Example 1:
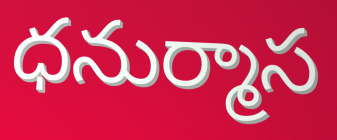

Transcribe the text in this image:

ధనుర్మాస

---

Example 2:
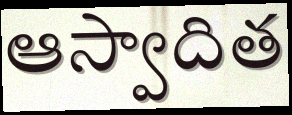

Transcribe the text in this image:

ఆస్వాదిత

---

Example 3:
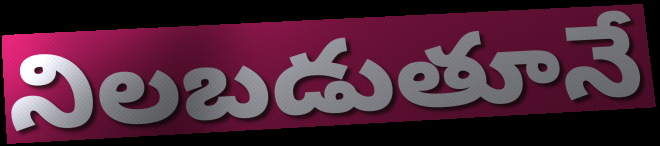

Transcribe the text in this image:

నిలబడుతూనే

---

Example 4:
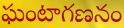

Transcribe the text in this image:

ఘంటాగణనం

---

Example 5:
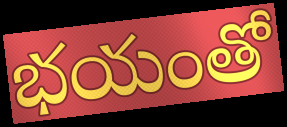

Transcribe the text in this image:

భయంతో